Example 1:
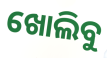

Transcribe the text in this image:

ଖୋଲିବୁ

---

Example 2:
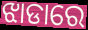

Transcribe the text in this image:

ଝାଡାରେ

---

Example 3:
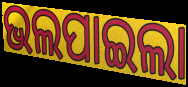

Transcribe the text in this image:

ଭଲପାଇଲା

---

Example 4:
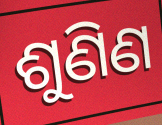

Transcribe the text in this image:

ଶୁଣିଣ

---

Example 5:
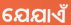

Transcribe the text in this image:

ଯେଯାଏଁ